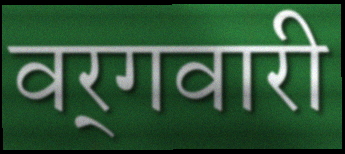
वर्गवारी